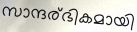
സാന്ദര്ഭികമായി